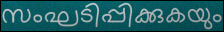
സംഘടിപ്പിക്കുകയും